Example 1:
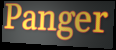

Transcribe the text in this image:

Panger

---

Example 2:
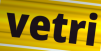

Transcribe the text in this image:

vetri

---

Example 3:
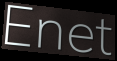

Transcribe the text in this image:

Enet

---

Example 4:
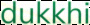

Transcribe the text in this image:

dukkhi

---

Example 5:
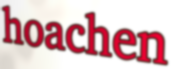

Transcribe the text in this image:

hoachen